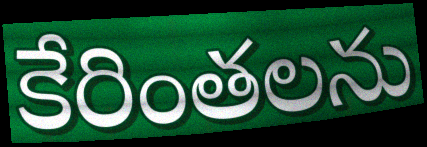
కేరింతలను